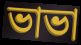
ভাভা